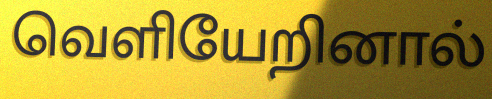
வெளியேறினால்